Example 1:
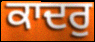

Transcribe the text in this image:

ਕਾਦਰੁ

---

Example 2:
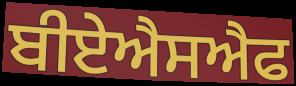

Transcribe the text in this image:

ਬੀਏਐਸਐਫ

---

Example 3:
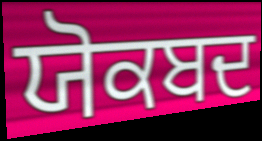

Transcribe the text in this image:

ਯੋਕਬਦ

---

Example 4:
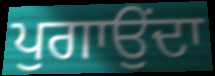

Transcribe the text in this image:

ਪੁਗਾਉਂਦਾ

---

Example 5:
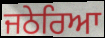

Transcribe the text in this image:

ਜਠੇਰਿਆ